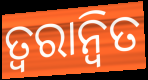
ତ୍ବରାନ୍ବିତ